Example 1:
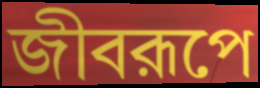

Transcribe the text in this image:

জীবরূপে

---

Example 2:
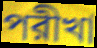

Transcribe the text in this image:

পরীখা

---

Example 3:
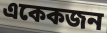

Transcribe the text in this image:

একেকজন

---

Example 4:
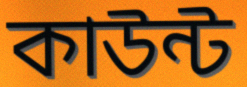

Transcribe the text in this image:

কাউন্ট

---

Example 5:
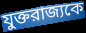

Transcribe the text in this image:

যুক্তরাজ্যকে